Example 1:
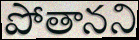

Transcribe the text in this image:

పోతానని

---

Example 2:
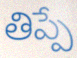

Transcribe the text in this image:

తిప్పే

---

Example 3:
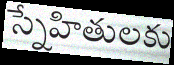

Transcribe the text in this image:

స్నేహితులకు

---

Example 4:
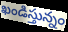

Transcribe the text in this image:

ఖండిస్తున్నం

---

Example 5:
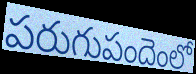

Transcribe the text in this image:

పరుగుపందెంలో